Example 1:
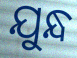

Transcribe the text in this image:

ଯୁନ୍ଧ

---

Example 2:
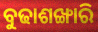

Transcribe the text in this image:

ବୁଢାଶଙ୍ଖାରି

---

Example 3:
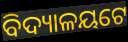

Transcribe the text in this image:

ବିଦ୍ୟାଳୟଟେ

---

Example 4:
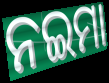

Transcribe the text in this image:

ନଇମା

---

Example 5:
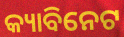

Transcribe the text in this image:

କ୍ୟାବିନେଟ